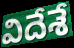
విదేశే